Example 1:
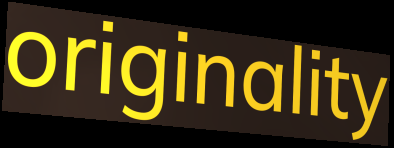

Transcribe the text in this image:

originality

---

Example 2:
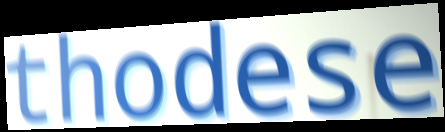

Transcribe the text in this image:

thodese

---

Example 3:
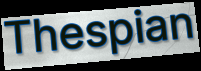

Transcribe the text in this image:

Thespian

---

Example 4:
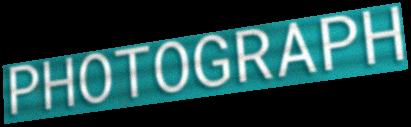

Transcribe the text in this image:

PHOTOGRAPH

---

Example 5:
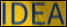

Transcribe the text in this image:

IDEA